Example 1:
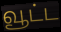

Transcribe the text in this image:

வூட்ட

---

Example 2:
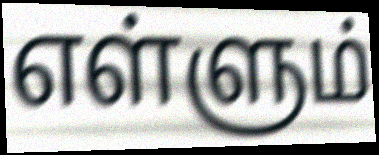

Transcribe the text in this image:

எள்ளும்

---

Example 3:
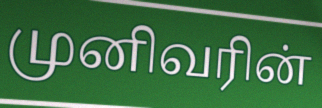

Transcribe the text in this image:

முனிவரின்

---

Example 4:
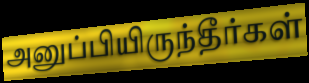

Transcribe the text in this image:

அனுப்பியிருந்தீர்கள்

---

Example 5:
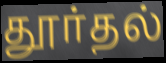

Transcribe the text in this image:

தூர்தல்